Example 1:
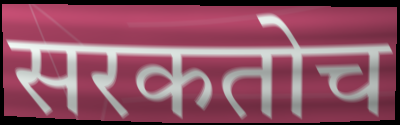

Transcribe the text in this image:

सरकतोच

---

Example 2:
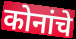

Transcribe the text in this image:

कोनांचे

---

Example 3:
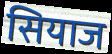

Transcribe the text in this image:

सियाज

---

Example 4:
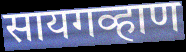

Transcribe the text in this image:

सायगव्हाण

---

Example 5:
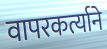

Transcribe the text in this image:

वापरकर्त्याने